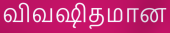
விவஷிதமான